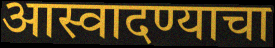
आस्वादण्याचा